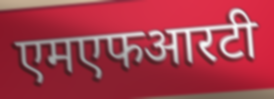
एमएफआरटी